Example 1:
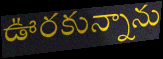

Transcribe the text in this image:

ఊరకున్నాను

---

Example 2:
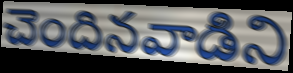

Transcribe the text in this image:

చెందినవాడిని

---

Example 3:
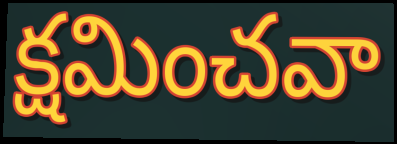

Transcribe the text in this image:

క్షమించవా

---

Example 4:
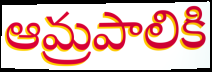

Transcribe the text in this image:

ఆమ్రపాలికి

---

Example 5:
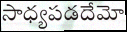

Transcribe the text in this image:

సాధ్యపడదేమో